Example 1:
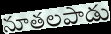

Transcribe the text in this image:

నూతలపాడు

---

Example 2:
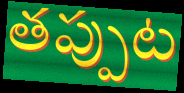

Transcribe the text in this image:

తప్పుట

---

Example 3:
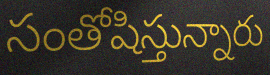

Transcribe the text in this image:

సంతోషిస్తున్నారు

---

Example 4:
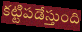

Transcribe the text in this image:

కట్టిపడేస్తుంది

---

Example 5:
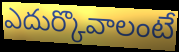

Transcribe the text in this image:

ఎదుర్కొవాలంటే